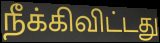
நீக்கிவிட்டது